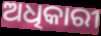
ଅଧିକାରୀ